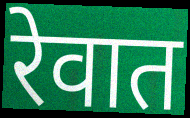
रेवात